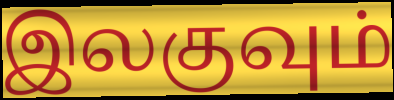
இலகுவும்